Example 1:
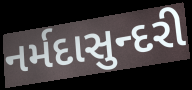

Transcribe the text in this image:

નર્મદાસુન્દરી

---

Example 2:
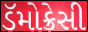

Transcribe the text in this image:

ડૅમોક્રેસી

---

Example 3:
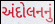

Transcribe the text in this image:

અંદોલનનું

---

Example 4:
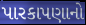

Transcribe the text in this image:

પારકાપણાનો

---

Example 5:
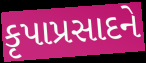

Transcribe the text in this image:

કૃપાપ્રસાદને